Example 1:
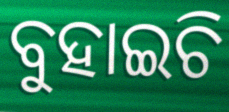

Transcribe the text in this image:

ବୁହାଇଚି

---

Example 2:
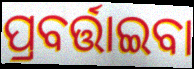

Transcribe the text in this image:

ପ୍ରବର୍ତ୍ତାଇବା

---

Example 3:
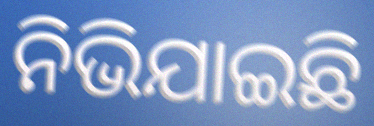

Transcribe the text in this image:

ନିଭିଯାଇଛି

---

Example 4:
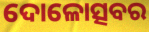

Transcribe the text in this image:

ଦୋଳୋତ୍ସବର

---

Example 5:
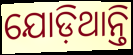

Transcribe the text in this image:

ଯୋଡ଼ିଥାନ୍ତି